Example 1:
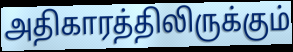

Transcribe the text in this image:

அதிகாரத்திலிருக்கும்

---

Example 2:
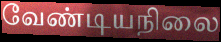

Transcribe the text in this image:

வேண்டியநிலை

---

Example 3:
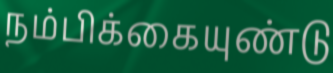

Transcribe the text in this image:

நம்பிக்கையுண்டு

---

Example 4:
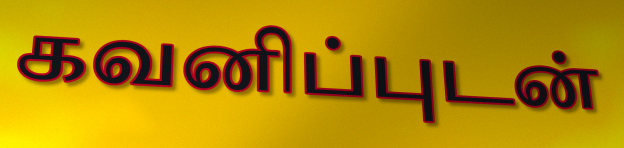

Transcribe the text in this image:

கவனிப்புடன்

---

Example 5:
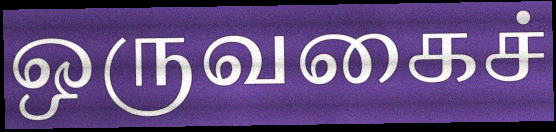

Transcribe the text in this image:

ஒருவகைச்